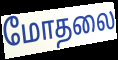
மோதலை